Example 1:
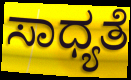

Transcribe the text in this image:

ಸಾಧ್ಯತೆ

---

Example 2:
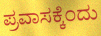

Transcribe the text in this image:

ಪ್ರವಾಸಕ್ಕೆಂದು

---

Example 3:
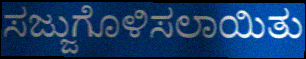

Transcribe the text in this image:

ಸಜ್ಜುಗೊಳಿಸಲಾಯಿತು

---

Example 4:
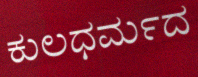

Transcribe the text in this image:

ಕುಲಧರ್ಮದ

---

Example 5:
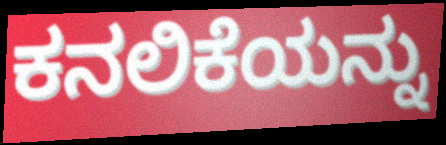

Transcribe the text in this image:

ಕನಲಿಕೆಯನ್ನು